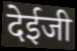
देईजी